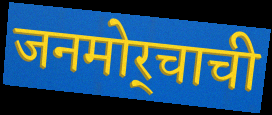
जनमोर्चाची